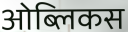
ओब्लिकस